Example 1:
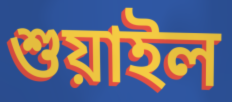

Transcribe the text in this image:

শুয়াইল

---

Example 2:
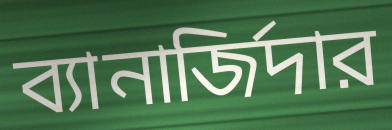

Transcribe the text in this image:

ব্যানার্জিদার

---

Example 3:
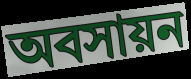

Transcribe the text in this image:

অবসায়ন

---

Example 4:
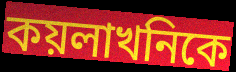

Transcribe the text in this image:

কয়লাখনিকে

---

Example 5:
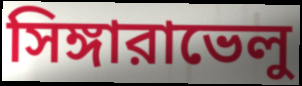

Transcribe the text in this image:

সিঙ্গারাভেলু